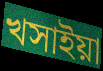
খসাইয়া